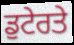
ਡੁਟੇਰਤੇ